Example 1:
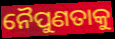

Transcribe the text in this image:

ନୈପୁଣତାକୁ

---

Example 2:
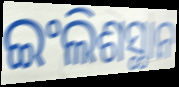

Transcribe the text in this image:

ଇଂଲିଶସ୍ଥାନ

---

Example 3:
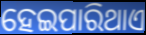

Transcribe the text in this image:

ହେଇପାରିଥାଏ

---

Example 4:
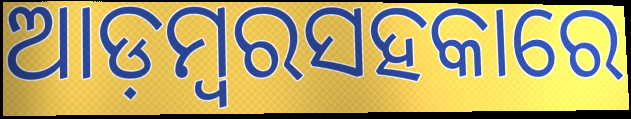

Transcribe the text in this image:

ଆଡ଼ମ୍ବରସହକାରେ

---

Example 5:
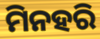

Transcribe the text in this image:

ମିନହରି